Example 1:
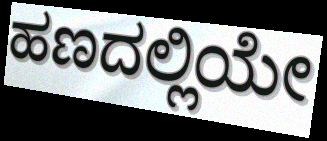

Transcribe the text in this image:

ಹಣದಲ್ಲಿಯೇ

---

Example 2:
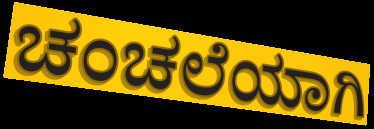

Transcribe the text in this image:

ಚಂಚಲೆಯಾಗಿ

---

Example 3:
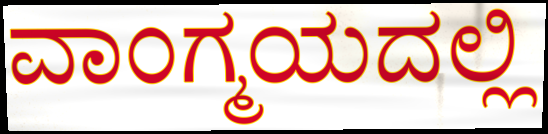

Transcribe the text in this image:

ವಾಂಗ್ಮಯದಲ್ಲಿ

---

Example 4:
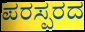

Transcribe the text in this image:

ಪರಸ್ಪರದ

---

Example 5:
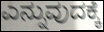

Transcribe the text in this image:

ಎನ್ನುವುದಕ್ಕೆ